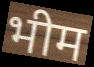
भीम